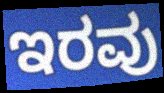
ಇರವು